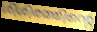
ശിശിരത്തിന്റെ